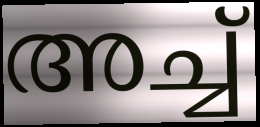
അച്ച്